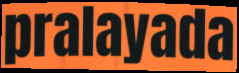
pralayada